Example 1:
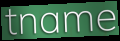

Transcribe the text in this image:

tname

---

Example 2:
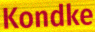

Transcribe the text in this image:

Kondke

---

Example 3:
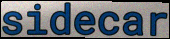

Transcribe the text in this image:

sidecar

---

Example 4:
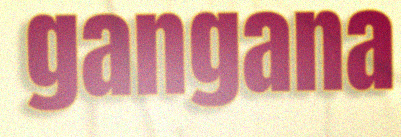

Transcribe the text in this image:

gangana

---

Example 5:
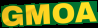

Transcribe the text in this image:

GMOA